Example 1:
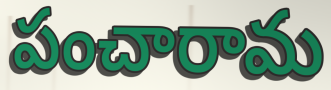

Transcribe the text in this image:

పంచారామ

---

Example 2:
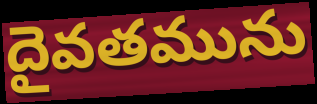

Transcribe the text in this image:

దైవతమును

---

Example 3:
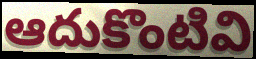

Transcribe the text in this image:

ఆదుకొంటివి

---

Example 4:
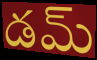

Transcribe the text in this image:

డమ్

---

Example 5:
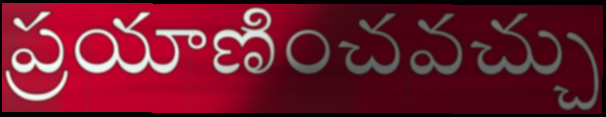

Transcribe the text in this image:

ప్రయాణించవచ్చు